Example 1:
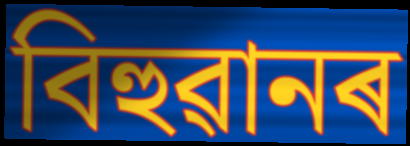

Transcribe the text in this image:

বিহুৱানৰ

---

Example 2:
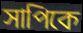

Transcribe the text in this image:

সাপিকে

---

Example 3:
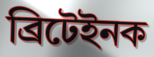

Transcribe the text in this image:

ব্ৰিটেইনক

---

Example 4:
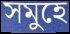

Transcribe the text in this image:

সমুহে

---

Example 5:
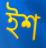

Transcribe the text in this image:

ইশ